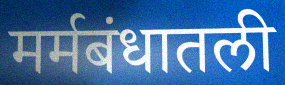
मर्मबंधातली